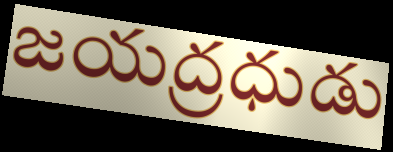
జయద్రధుడు